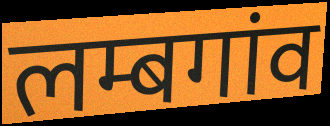
लम्बगांव